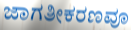
ಜಾಗತೀಕರಣವೂ